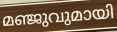
മഞ്ജുവുമായി